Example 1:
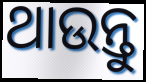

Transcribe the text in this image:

ଥାଉନ୍ତୁ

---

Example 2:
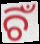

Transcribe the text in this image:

ଚିଁ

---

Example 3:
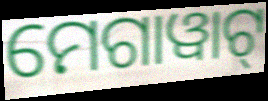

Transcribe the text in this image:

ମେଗାୱାଟ୍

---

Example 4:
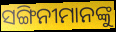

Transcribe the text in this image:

ସଙ୍ଗିନୀମାନଙ୍କୁ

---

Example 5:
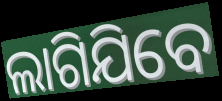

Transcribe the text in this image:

ଲାଗିଯିବେ